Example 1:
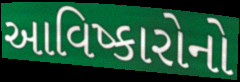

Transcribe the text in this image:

આવિષ્કારોનો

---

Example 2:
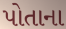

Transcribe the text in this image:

પોતાના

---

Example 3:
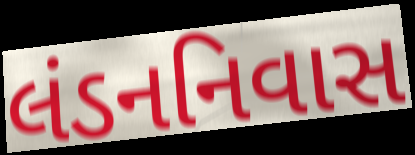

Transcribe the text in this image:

લંડનનિવાસ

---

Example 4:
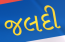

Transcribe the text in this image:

જલદી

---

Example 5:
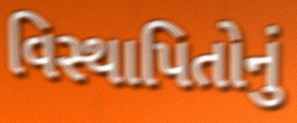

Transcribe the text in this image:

વિસ્થાપિતોનું